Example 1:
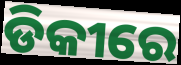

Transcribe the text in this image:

ଡିକୀରେ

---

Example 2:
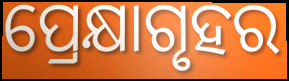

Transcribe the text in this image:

ପ୍ରେକ୍ଷାଗୃହର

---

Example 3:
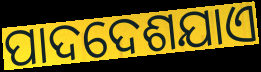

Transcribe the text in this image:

ପାଦଦେଶଯାଏ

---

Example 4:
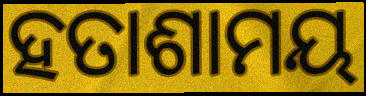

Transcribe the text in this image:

ହତାଶାମୟ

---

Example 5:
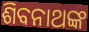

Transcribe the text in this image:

ଶିବନାଥଙ୍କ